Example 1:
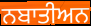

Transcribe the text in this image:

ਨਬਾਤੀਅਨ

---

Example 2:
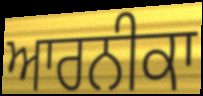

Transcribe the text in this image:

ਆਰਨੀਕਾ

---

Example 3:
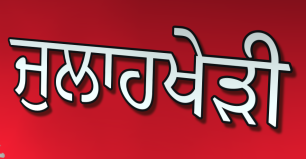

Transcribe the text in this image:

ਜੁਲਾਹਖੇੜੀ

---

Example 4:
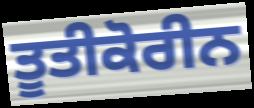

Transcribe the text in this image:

ਤੂਤੀਕੋਰੀਨ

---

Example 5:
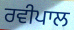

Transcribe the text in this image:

ਰਵੀਪਾਲ